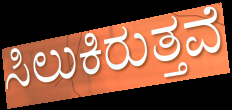
ಸಿಲುಕಿರುತ್ತವೆ